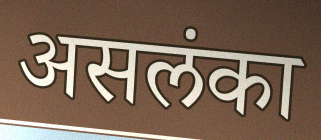
असलंका